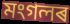
মংগলৰ